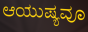
ಆಯುಷ್ಯವೂ